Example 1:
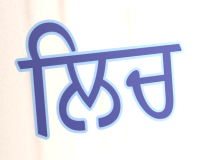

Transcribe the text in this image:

ਲਿਚ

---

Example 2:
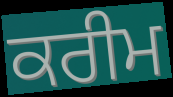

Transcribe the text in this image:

ਕਰੀਮ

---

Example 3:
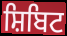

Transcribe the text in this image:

ਸ਼ਿਬਿਟ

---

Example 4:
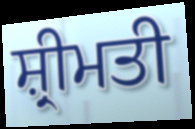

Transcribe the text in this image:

ਸ਼੍ਰੀਮਤੀ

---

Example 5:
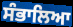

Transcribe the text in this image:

ਸੰਭਾਲਿਆ